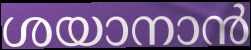
ശയാനാൻ